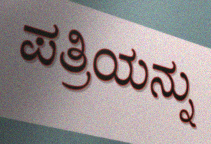
ಪತ್ರಿಯನ್ನು